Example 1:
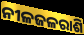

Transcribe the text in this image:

ନୀଳଜଳରାଶି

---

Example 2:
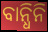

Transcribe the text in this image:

ବାନ୍ଧିନି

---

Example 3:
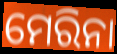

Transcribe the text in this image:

ମେରିନା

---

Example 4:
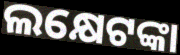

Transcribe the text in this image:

ଲକ୍ଷେଟଙ୍କା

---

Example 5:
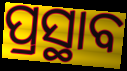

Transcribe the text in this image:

ପ୍ରସ୍ଥାବ